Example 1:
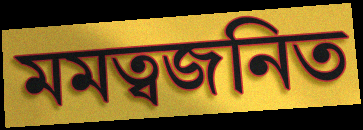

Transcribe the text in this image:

মমত্বজনিত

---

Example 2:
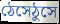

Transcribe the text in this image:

ঠেসেঠুসে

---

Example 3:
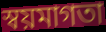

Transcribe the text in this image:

স্বয়মাগতা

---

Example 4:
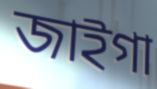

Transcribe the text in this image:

জাইগা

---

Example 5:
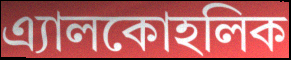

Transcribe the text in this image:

এ্যালকোহলিক